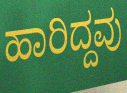
ಹಾರಿದ್ದವು